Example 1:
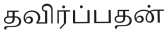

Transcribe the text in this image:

தவிர்ப்பதன்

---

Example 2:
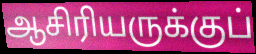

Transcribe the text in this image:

ஆசிரியருக்குப்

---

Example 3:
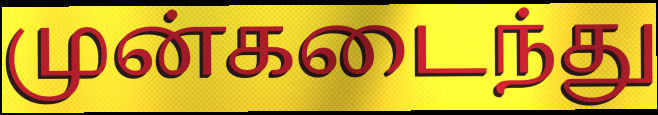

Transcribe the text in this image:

முன்கடைந்து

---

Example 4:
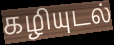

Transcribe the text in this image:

கழியுடல்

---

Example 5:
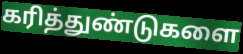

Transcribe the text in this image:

கரித்துண்டுகளை